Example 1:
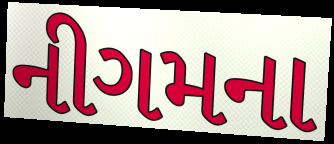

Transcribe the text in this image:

નીગમના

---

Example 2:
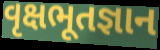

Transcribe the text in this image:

વૃક્ષભૂતજ્ઞાન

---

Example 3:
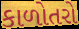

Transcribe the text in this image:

કાળોતરો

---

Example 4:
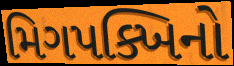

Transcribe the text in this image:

મિગપક્ખિનો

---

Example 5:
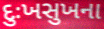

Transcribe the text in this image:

દુઃખસુખના